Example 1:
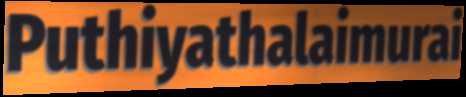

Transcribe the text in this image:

Puthiyathalaimurai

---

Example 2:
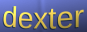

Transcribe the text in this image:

dexter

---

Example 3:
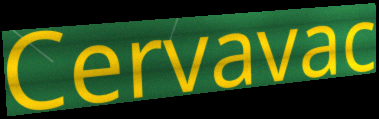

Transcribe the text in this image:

Cervavac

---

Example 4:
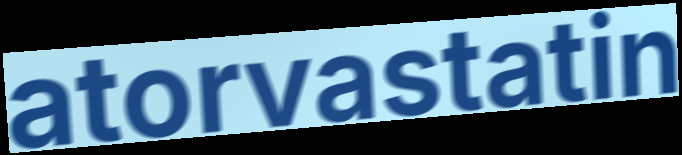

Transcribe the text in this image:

atorvastatin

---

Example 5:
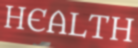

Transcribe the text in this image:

HEALTH